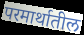
परमार्थातील